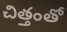
చిత్తంతో